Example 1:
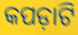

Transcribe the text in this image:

କପଡ଼ାଟି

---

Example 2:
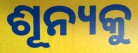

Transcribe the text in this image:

ଶୂନ୍ୟକୁ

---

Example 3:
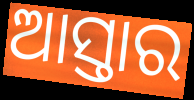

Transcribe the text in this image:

ଆସ୍ତାର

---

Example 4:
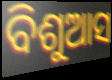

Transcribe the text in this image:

ବିଶୁଆସ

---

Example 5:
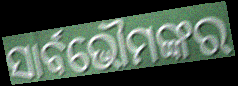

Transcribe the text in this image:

ସାର୍ବଭୌମଙ୍କର